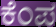
ಕೆಂಪ